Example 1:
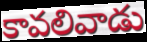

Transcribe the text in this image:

కావలివాడు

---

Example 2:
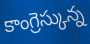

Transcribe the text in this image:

కాంగ్రెస్కున్న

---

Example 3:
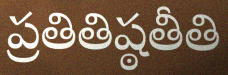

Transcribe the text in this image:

ప్రతితిష్ఠతీతి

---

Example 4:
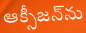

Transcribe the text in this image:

ఆక్సీజన్‌ను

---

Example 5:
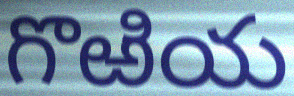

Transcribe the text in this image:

గొఱియ